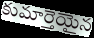
కుమార్తెయైన